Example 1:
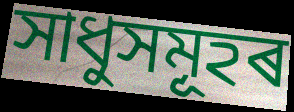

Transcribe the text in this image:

সাধুসমূহৰ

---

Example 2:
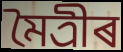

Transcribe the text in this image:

মৈত্ৰীৰ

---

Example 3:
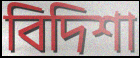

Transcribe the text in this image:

বিদিশা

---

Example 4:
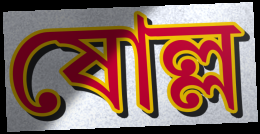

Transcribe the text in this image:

ষোল্ল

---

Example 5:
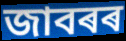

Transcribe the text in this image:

জাবৰৰ